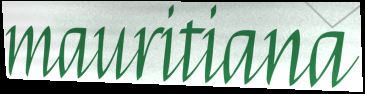
mauritiana